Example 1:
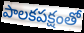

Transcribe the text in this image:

పాలకపక్షంతో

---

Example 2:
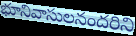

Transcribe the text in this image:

భూనివాసులనందరిని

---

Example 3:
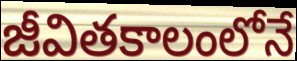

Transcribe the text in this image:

జీవితకాలంలోనే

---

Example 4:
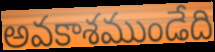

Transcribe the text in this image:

అవకాశముండేది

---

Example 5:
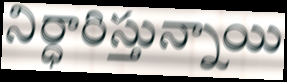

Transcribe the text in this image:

నిర్ధారిస్తున్నాయి